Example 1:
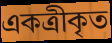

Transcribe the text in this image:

একত্রীকৃত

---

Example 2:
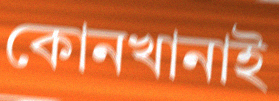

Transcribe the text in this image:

কোনখানাই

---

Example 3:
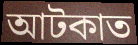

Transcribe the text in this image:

আটকাত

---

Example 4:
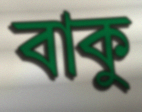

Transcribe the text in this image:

বাকু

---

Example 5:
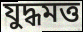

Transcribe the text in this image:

যুদ্ধমত্ত